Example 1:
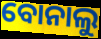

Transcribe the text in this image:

ବୋନାଲୁ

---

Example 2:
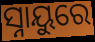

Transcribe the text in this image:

ସ୍ନାୟୁରେ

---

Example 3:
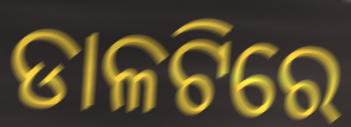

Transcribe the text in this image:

ଡାଳଟିରେ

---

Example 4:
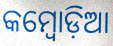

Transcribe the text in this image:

କମ୍ୱୋଡ଼ିଆ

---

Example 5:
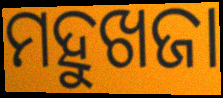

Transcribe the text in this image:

ମହୁଖଜା